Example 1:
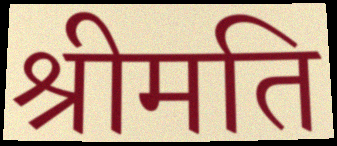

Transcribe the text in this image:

श्रीमति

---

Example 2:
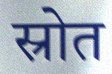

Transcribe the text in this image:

स्रोत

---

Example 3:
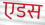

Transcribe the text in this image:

एडस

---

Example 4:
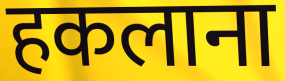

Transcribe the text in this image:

हकलाना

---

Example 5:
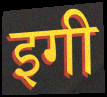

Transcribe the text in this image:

इगी